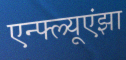
एन्फ्ल्यूएंझा